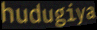
hudugiya